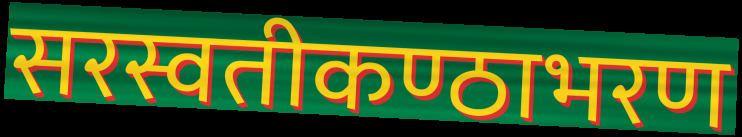
सरस्वतीकण्ठाभरण